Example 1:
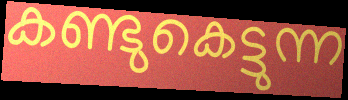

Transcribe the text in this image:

കണ്ടുകെട്ടുന്ന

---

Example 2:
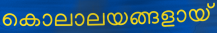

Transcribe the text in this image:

കൊലാലയങ്ങളായ്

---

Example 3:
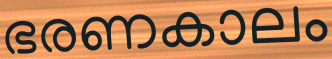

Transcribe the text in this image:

ഭരണകാലം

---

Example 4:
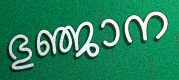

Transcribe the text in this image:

ഭുഞ്ജാന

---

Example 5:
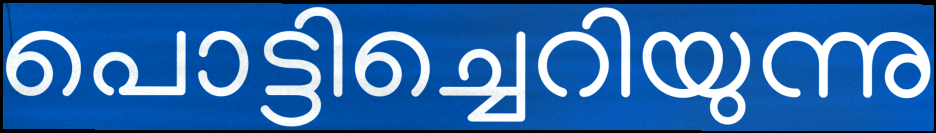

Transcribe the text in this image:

പൊട്ടിച്ചെറിയുന്നു